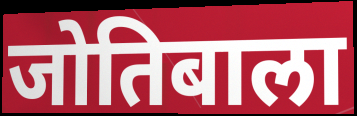
जोतिबाला